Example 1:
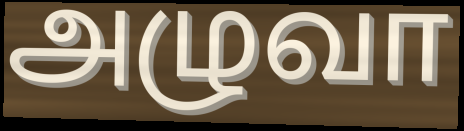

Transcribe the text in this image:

அழுவா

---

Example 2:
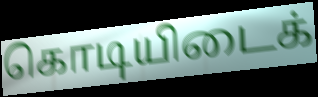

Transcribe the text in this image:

கொடியிடைக்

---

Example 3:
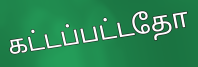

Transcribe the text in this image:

கட்டப்பட்டதோ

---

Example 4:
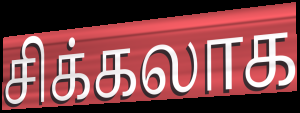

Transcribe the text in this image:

சிக்கலாக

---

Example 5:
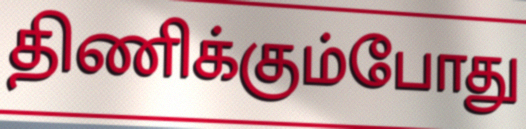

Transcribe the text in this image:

திணிக்கும்போது